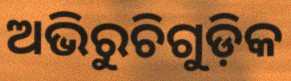
ଅଭିରୁଚିଗୁଡ଼ିକ